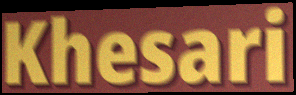
Khesari